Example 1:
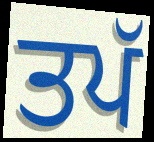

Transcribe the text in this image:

ਤਪੱ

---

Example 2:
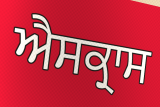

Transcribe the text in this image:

ਐਸਕ੍ਰਾਸ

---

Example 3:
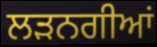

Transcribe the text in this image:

ਲੜਨਗੀਆਂ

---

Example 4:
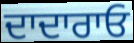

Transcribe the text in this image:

ਦਾਦਾਰਾਓ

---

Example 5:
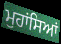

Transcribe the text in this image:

ਮੁਹਾਂਸਿਆਂ